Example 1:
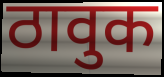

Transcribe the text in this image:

ठावुक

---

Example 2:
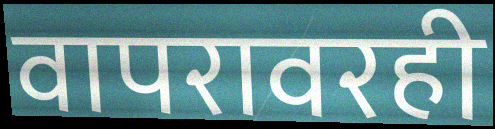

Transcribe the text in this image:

वापरावरही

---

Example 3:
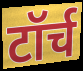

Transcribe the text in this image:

टॉर्च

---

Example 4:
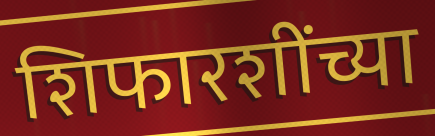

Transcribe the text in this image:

शिफारशींच्या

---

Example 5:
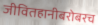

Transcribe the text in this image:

जीवितहानीबरोबरच